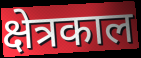
क्षेत्रकाल